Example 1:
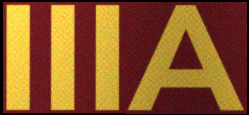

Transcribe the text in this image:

IIIA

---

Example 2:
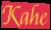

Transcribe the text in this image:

Kahe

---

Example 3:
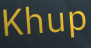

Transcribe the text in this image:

Khup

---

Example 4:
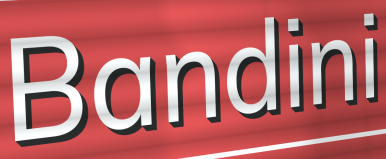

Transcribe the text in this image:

Bandini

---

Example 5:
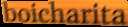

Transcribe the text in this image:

boicharita